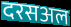
दरसअल